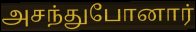
அசந்துபோனார்